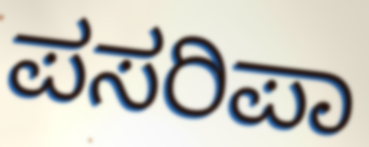
ಪಸರಿಪಾ